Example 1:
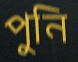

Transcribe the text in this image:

পুনি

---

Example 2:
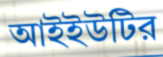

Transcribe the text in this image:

আইইউটির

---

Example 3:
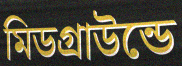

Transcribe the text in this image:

মিডগ্রাউন্ডে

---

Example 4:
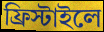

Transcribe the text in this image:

ফ্রিস্টাইলে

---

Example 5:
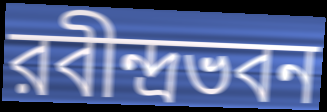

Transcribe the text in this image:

রবীন্দ্রভবন